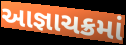
આજ્ઞાચક્રમાં